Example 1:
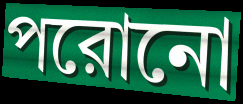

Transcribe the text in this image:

পরোনো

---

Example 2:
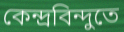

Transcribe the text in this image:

কেন্দ্রবিন্দুতে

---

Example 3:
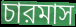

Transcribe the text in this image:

চারমাস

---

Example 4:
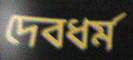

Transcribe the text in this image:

দেবধর্ম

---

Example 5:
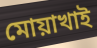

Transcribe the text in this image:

মোয়াখাই